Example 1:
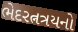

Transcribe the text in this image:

ભેદરત્નત્રયનો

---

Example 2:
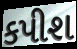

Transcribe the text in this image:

કપીશ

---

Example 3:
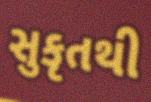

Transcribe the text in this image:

સુકૃતથી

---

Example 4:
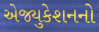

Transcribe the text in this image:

એજ્યુકેશનનો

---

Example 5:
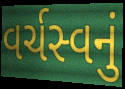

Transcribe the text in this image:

વર્ચસ્વનું